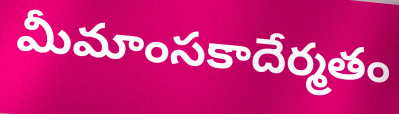
మీమాంసకాదేర్మతం